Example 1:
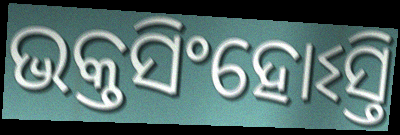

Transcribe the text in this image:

ଭକ୍ତସିଂହୋଽସ୍ତି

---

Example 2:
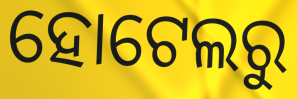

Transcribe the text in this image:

ହୋଟେଲରୁ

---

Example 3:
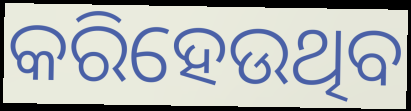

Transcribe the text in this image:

କରିହେଉଥିବ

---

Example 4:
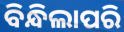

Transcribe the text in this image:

ବିନ୍ଧିଲାପରି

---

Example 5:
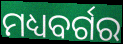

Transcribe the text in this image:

ମଧ୍ୟବର୍ଗର